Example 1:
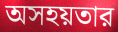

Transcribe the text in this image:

অসহয়তার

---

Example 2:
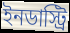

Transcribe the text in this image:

ইনডাস্ট্রি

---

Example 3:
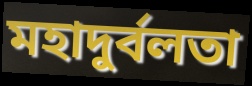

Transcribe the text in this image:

মহাদুর্বলতা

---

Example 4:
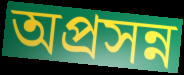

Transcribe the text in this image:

অপ্রসন্ন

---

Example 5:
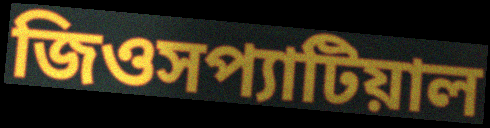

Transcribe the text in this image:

জিওসপ্যাটিয়াল